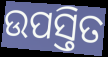
ଉପସ୍ତିତ